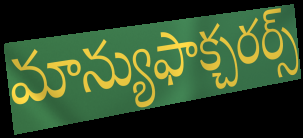
మాన్యుఫాక్చరర్స్